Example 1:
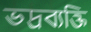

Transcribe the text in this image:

ভদ্রব্যক্তি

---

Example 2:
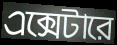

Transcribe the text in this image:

এক্সেটারে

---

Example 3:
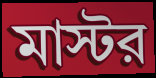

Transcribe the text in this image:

মাস্টর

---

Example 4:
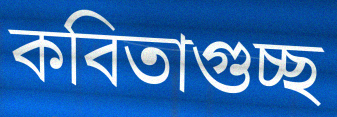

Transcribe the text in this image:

কবিতাগুচ্ছ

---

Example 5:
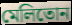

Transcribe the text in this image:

মেলিতোন